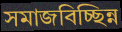
সমাজবিচ্ছিন্ন